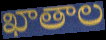
ఖాతాల